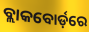
ବ୍ଲାକବୋର୍ଡ଼ରେ